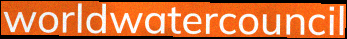
worldwatercouncil